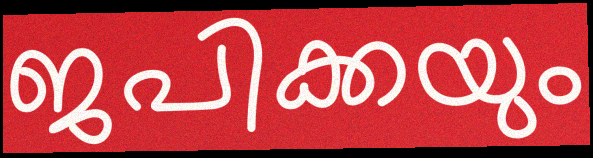
ജപിക്കയും